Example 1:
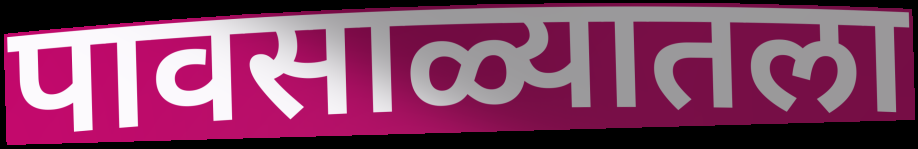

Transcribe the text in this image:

पावसाळ्यातला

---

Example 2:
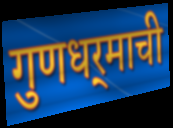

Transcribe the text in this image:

गुणधर्माची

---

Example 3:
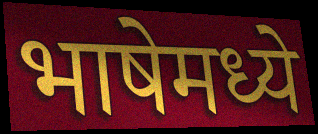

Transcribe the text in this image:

भाषेमध्ये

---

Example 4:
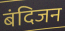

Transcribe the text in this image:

बंदिजन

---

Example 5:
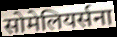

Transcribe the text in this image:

सोमेलियर्सना